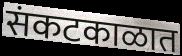
संकटकाळात